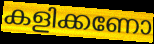
കളിക്കണോ